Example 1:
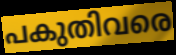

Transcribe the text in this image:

പകുതിവരെ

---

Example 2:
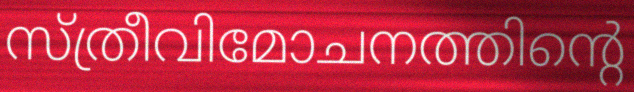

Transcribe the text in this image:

സ്ത്രീവിമോചനത്തിന്റെ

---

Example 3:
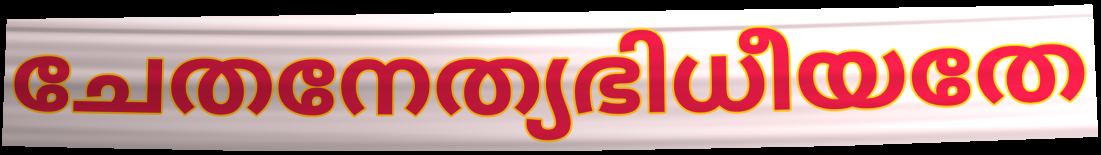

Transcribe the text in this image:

ചേതനേത്യഭിധീയതേ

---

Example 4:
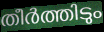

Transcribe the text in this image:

തീർത്തിടും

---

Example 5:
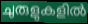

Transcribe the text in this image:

ചുരുളുകളിൽ